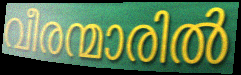
വീരന്മാരിൽ